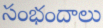
సంభందాలు